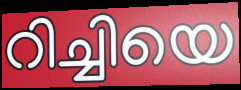
റിച്ചിയെ